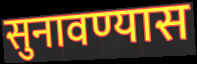
सुनावण्यास